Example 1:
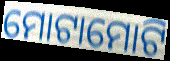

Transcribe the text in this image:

ମୋଟାମୋଟି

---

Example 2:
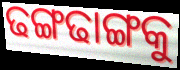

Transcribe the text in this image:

ଢଙ୍ଗଢାଙ୍ଗକୁ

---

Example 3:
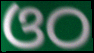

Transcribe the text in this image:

ଓଠ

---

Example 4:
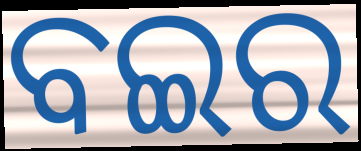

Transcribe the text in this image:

ବଇର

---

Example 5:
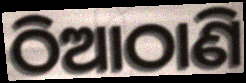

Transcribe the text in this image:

ଠିଆଠାଣି